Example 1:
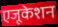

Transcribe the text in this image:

एजूकेशन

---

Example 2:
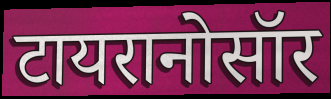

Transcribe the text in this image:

टायरानोसॉर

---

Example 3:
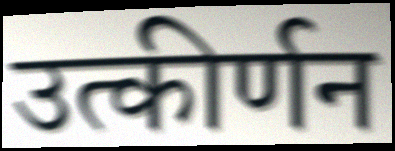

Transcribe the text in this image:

उत्कीर्णन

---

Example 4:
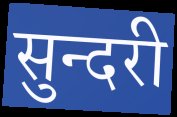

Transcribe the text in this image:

सुन्दरी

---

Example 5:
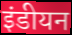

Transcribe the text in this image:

इंडीयन